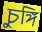
চুঙ্গি